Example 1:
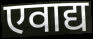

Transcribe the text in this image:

एवाद्य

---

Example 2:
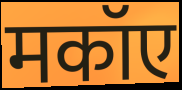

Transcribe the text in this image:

मकॉए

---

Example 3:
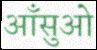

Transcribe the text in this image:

आँसुओ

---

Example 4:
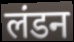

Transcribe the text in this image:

लंडन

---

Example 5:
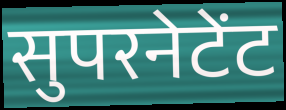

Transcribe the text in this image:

सुपरनेटेंट